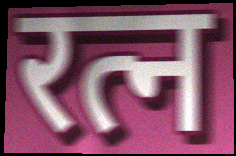
रत्न